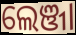
ଲେଞ୍ଜା